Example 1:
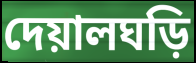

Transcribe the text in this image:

দেয়ালঘড়ি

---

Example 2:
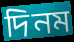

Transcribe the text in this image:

দিনম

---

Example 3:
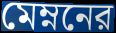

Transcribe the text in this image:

মেম্ননের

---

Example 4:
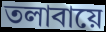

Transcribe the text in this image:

তলাবায়ে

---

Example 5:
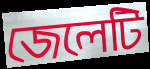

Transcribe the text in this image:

জেলেটি